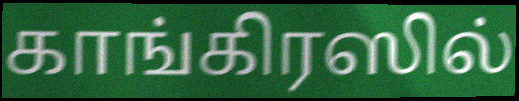
காங்கிரஸில்